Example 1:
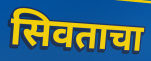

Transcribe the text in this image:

सिवताचा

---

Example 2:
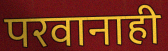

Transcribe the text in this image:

परवानाही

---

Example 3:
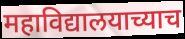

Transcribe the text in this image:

महाविद्यालयाच्याच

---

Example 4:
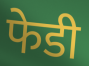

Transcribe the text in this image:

फेडी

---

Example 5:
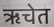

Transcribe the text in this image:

ॠचेत